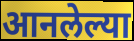
आनलेल्या